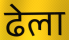
ढेला